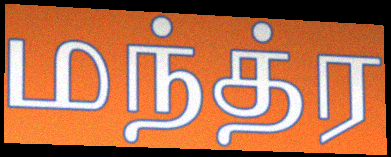
மந்த்ர